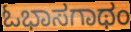
ಓಭಾಸಗಾಥಂ